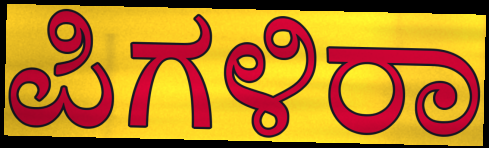
ಪಿಗಳಿರಾ